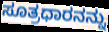
ಸೂತ್ರಧಾರನನ್ನು